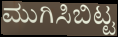
ಮುಗಿಸಿಬಿಟ್ಟ